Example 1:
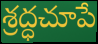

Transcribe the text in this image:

శ్రద్ధచూపే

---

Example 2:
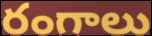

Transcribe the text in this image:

రంగాలు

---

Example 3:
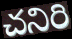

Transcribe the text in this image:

చనిరి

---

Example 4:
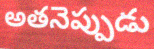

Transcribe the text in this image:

అతనెప్పుడు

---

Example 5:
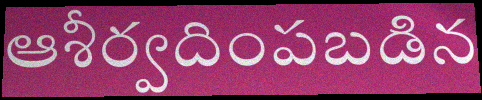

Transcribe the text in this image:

ఆశీర్వదింపబడిన